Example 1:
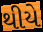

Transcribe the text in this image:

થીયે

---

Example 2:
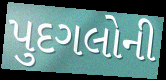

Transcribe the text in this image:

પુદગલોની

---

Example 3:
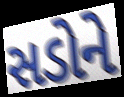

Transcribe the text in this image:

સડોને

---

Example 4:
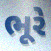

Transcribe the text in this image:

ભૂરે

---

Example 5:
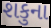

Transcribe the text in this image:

શકુના